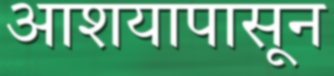
आशयापासून